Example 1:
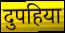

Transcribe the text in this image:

दुपहिया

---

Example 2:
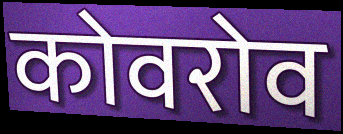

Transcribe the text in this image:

कोवरोव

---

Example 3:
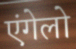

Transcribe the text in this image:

एंगेलो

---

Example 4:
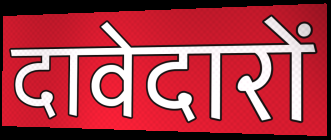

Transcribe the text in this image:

दावेदारों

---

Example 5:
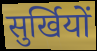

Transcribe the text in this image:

सुर्खियों